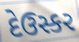
દેઉસ્કર